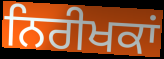
ਨਿਰੀਖਕਾਂ